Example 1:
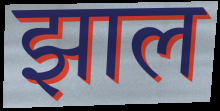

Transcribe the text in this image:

झाल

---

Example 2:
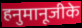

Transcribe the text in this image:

हनुमानूजीके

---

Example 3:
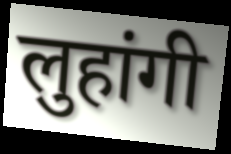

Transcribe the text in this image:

लुहांगी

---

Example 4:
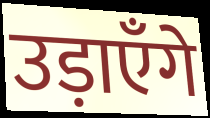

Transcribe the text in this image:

उड़ाएँगे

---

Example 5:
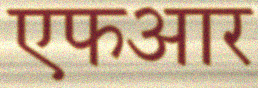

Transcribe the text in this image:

एफआर